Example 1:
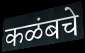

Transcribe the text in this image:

कळंबचे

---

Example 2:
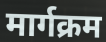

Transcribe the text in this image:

मार्गक्रम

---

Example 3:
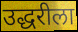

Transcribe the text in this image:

उद्धरीला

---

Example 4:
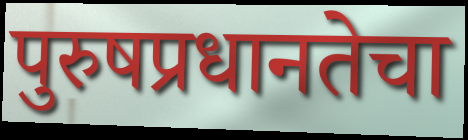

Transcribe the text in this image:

पुरुषप्रधानतेचा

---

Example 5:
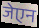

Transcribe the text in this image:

जेएन